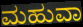
ಮಹುವಾ